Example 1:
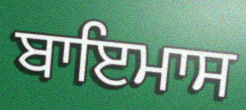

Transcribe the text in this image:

ਬਾਇਮਾਸ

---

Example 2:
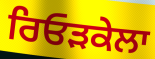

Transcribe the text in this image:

ਰਿਓੜਕੇਲਾ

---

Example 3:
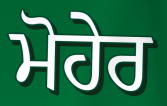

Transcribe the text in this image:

ਮੋਹੇਰ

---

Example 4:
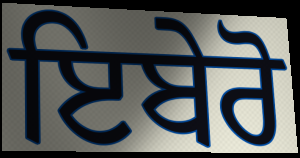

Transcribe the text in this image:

ਇਬੇਰੋ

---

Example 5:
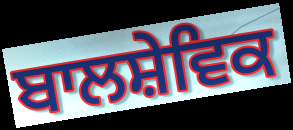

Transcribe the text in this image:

ਬਾਲਸ਼ੇਵਿਕ